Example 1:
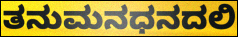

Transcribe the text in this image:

ತನುಮನಧನದಲಿ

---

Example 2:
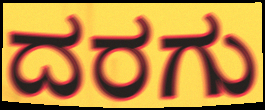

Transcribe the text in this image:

ದರಗು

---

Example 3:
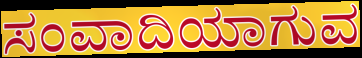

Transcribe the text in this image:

ಸಂವಾದಿಯಾಗುವ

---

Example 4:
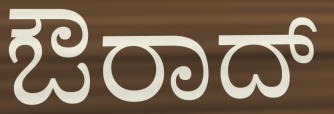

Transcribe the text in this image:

ಔರಾದ್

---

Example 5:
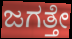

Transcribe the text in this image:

ಜಗತ್ತೇ